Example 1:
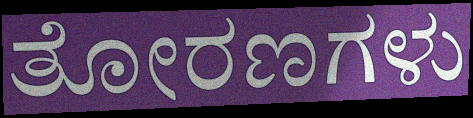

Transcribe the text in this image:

ತೋರಣಗಳು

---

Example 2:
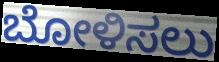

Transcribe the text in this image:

ಬೋಳಿಸಲು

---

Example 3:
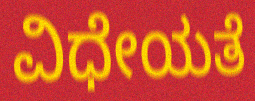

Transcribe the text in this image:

ವಿಧೇಯತೆ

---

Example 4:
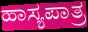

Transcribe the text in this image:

ಹಾಸ್ಯಪಾತ್ರ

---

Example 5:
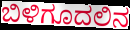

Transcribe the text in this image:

ಬಿಳಿಗೂದಲಿನ